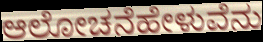
ಆಲೋಚನೆಹೇಳುವೆನು